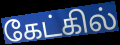
கேட்கில்